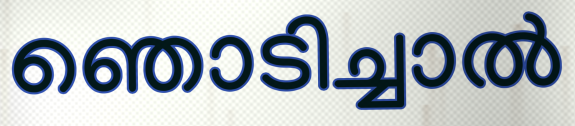
ഞൊടിച്ചാൽ